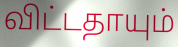
விட்டதாயும்